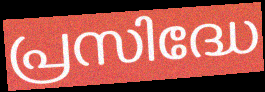
പ്രസിദ്ധേ